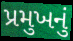
પ્રમુખનું